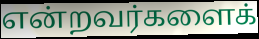
என்றவர்களைக்